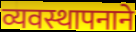
व्यवस्थापनाने